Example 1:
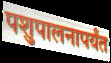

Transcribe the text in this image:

पशुपालनापर्यंत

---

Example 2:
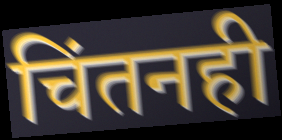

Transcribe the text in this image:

चिंतनही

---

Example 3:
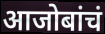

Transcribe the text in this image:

आजोबांचं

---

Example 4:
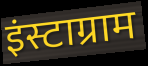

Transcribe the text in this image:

इंस्टाग्राम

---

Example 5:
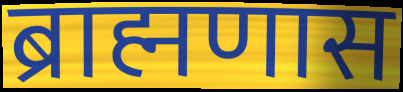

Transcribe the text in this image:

ब्राह्मणास